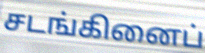
சடங்கினைப்